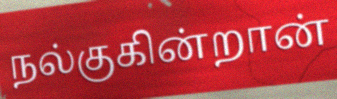
நல்குகின்றான்